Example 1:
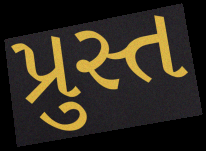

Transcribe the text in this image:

પ્રુસ્ત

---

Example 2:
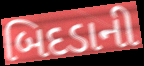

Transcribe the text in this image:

બિદડાની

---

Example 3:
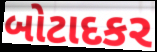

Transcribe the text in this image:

બોટાદકર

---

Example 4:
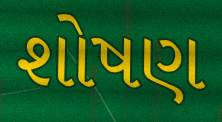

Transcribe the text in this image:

શોષણ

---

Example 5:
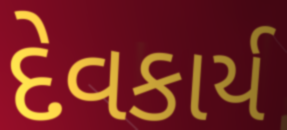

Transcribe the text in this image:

દેવકાર્ય